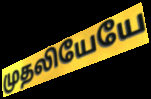
முதலியேயே